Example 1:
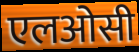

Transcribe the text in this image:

एलओसी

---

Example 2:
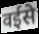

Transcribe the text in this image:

वईसे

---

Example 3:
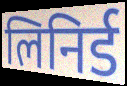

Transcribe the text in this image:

लिनिर्ड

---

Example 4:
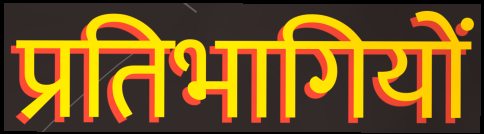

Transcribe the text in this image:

प्रतिभागियों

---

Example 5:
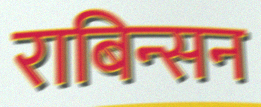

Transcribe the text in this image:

राबिन्सन